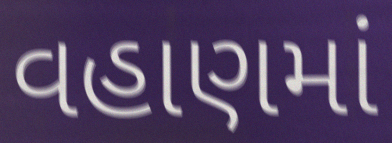
વહાણમાં